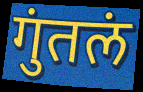
गुंतलं